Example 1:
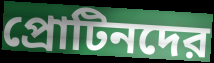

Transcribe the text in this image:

প্রোটিনদের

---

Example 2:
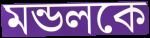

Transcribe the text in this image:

মন্ডলকে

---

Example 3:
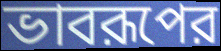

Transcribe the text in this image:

ভাবরূপের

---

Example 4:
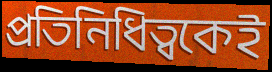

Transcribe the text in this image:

প্রতিনিধিত্বকেই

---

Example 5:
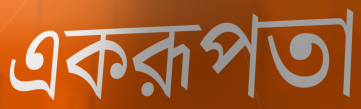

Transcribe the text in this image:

একরূপতা